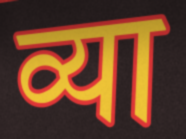
व्‍या